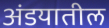
अंडयातील